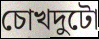
চোখদুটো